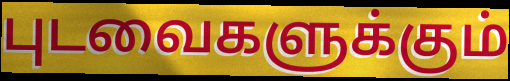
புடவைகளுக்கும்